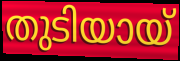
തുടിയായ്